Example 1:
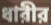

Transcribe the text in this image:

ধারীর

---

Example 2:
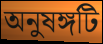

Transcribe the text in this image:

অনুষঙ্গটি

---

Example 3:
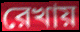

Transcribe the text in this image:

রেখায়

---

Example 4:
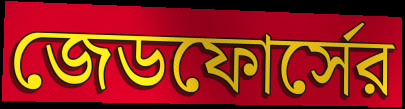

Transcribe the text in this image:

জেডফোর্সের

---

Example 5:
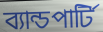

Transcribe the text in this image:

ব্যান্ডপার্টি